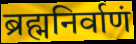
ब्रह्मनिर्वाणं